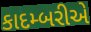
કાદમ્બરીએ